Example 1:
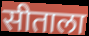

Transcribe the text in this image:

सीताला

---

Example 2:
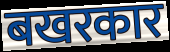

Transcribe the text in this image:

बखरकार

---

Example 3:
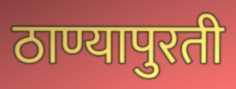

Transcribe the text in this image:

ठाण्यापुरती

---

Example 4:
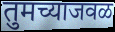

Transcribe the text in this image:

तुमच्याजवळ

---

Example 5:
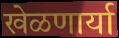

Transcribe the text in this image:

खेळणार्या